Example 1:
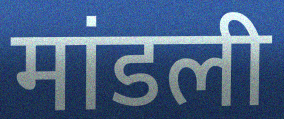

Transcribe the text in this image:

मांडली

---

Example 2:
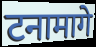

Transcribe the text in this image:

टनामागे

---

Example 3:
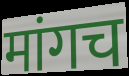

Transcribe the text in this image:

मांगच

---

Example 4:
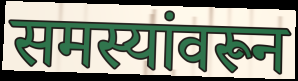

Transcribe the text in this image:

समस्यांवरून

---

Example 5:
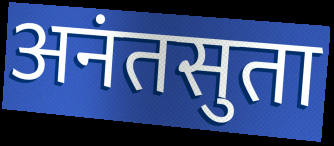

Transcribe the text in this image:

अनंतसुता